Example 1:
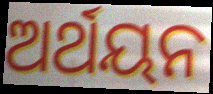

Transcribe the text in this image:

ଅର୍ଥୟନ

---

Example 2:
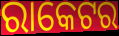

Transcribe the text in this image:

ରାକେଟର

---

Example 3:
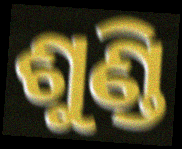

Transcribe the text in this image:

ଶୁଣ୍ଡି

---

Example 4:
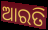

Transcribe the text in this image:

ଆରତି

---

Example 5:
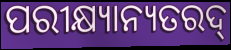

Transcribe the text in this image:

ପରୀକ୍ଷ୍ୟାନ୍ୟତରଦ୍